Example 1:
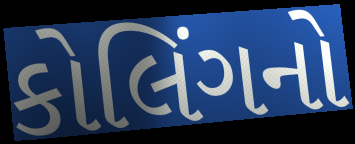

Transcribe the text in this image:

કોલિંગનો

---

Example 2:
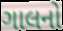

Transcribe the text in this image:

ગાલનો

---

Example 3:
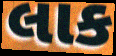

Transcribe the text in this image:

લાક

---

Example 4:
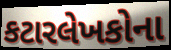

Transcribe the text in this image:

કટારલેખકોના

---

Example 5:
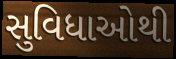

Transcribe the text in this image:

સુવિધાઓથી